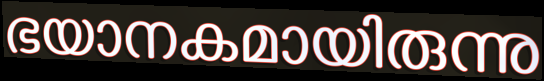
ഭയാനകമായിരുന്നു